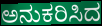
ಅನುಕರಿಸಿದ